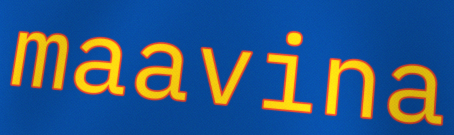
maavina